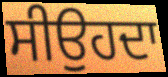
ਸੀਉਹਦਾ